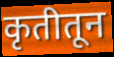
कृतीतून